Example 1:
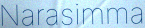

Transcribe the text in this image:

Narasimma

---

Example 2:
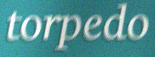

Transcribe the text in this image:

torpedo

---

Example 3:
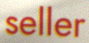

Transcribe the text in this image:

seller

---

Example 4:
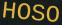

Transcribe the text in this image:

HOSO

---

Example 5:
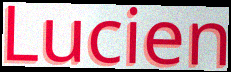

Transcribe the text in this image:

Lucien